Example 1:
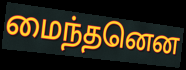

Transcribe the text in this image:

மைந்தனென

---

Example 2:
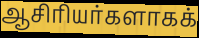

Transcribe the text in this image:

ஆசிரியர்களாகக்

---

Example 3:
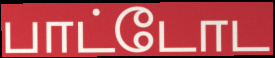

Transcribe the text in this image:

பாட்டோட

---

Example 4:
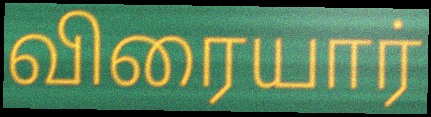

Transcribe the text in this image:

விரையார்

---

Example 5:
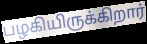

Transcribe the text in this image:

பழகியிருக்கிறார்